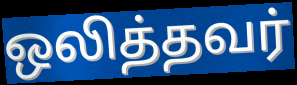
ஒலித்தவர்